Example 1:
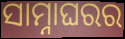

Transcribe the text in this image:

ସାମ୍ନାଘରର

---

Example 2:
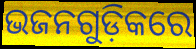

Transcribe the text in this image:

ଭଜନଗୁଡ଼ିକରେ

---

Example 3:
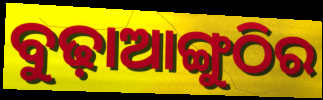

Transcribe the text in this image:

ବୁଢ଼ାଆଙ୍ଗୁଠିର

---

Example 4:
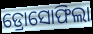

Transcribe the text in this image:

ଡ୍ରୋସୋଫିଲା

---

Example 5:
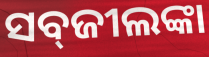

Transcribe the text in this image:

ସବ୍‌ଜୀଲଙ୍କା